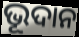
ଭୂଦାନ